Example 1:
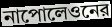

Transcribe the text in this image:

নাপোলেওনের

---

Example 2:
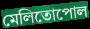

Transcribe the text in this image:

মেলিতোপোল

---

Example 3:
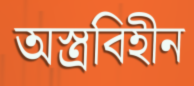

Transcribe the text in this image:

অস্ত্রবিহীন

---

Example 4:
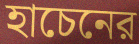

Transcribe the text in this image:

হাচেনের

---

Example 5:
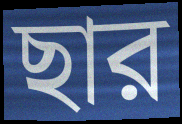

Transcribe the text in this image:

ছার